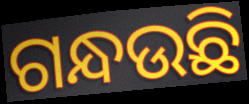
ଗନ୍ଧଉଛି